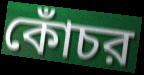
কোঁচর